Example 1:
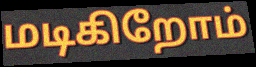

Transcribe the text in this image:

மடிகிறோம்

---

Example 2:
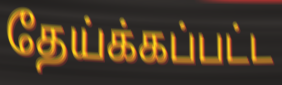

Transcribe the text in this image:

தேய்க்கப்பட்ட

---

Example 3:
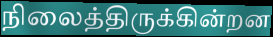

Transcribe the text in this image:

நிலைத்திருக்கின்றன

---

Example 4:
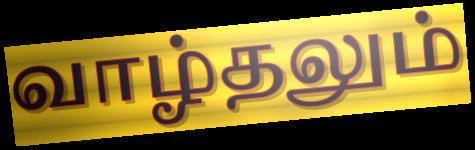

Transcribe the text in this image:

வாழ்தலும்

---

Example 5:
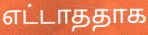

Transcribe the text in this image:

எட்டாததாக